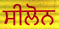
ਸੀਲੋਨ